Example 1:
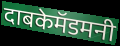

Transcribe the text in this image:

दाबकेमॅडमनी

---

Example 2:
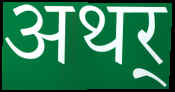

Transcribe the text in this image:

अथर्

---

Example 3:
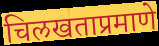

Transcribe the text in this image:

चिलखताप्रमाणे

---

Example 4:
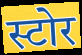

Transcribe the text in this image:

स्टोर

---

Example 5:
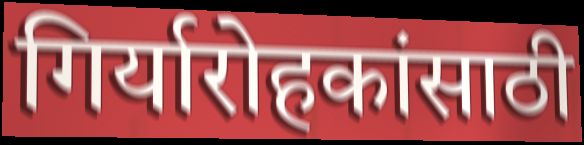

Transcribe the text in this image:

गिर्यारोहकांसाठी